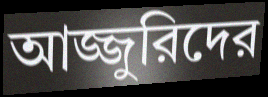
আজ্জুরিদের